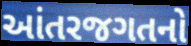
આંતરજગતનો